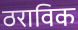
ठराविक